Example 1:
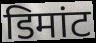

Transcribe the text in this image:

डिमांट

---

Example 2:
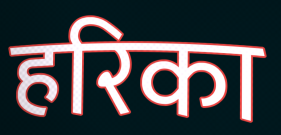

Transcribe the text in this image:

हरिका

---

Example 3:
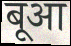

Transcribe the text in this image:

बूआ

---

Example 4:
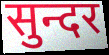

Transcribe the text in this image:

सुन्दर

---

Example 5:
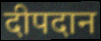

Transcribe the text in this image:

दीपदान